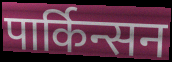
पार्किन्सन